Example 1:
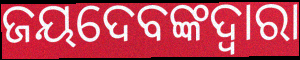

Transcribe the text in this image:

ଜୟଦେବଙ୍କଦ୍ୱାରା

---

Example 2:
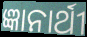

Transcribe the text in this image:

ଜ୍ଞାନାର୍ଥୀ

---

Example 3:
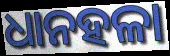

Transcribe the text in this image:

ଧାନହଳା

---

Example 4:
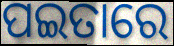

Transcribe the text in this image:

ପଇତାରେ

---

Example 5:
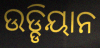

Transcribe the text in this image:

ଉଡ୍ଡିୟାନ